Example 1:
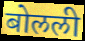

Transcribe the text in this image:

बोलली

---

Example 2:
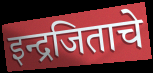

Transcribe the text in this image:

इन्द्रजिताचे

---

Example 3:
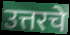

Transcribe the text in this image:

उत्तरचे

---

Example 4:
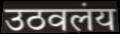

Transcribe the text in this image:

उठवलंय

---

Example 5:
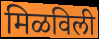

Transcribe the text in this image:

मिळविली